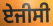
ਏਜੀਸੀ